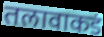
तलावाकडं